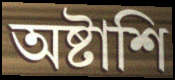
অষ্টাশি